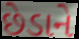
છેડાને